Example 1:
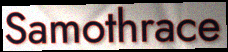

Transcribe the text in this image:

Samothrace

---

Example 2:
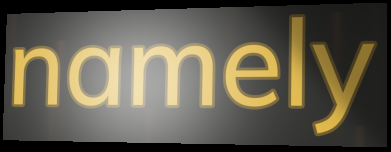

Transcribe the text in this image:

namely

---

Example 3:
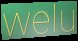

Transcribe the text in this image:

welu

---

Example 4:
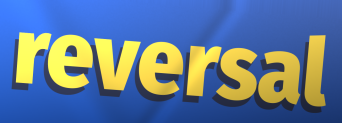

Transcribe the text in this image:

reversal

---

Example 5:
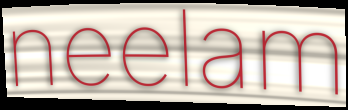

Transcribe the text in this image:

neelam